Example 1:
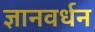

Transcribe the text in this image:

ज्ञानवर्धन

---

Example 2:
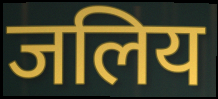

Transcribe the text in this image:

जलिय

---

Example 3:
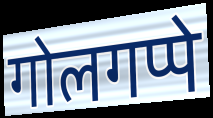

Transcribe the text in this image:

गोलगप्पे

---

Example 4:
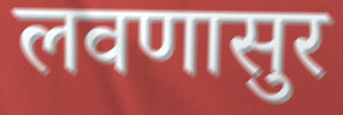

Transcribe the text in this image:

लवणासुर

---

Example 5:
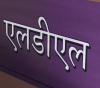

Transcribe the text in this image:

एलडीएल